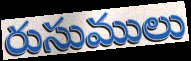
రుసుములు